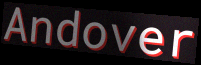
Andover